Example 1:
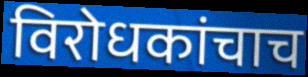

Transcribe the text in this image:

विरोधकांचाच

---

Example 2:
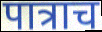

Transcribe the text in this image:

पात्राच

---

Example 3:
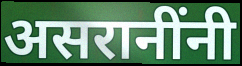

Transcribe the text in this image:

असरानींनी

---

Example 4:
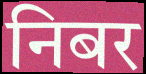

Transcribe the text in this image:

निबर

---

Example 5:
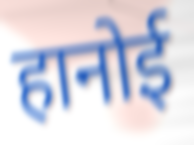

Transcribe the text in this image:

हानोई